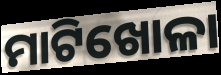
ମାଟିଖୋଳା